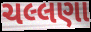
ચલ્લણા